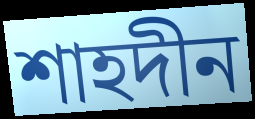
শাহদীন